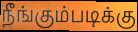
நீங்கும்படிக்கு